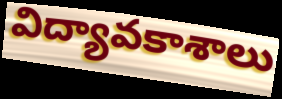
విద్యావకాశాలు